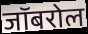
जॉबरोल